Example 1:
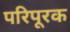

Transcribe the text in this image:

परिपूरक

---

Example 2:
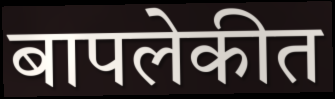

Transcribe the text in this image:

बापलेकीत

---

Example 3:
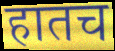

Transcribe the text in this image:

हातच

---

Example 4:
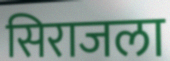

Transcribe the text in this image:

सिराजला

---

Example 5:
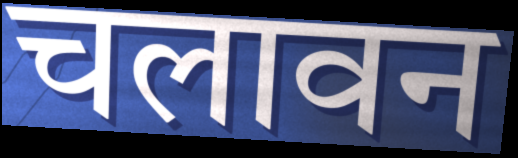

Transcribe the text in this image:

चलावन